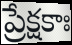
ప్రేక్షకాః